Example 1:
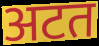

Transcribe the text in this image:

अटत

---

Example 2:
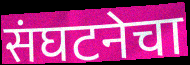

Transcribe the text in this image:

संघटनेचा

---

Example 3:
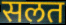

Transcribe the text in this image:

सलत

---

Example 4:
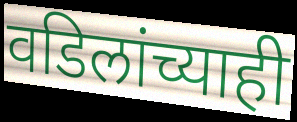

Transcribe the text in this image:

वडिलांच्याही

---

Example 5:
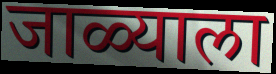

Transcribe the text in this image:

जाळ्याला